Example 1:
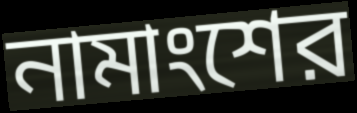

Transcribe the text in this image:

নামাংশের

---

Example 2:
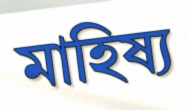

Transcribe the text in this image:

মাহিষ্য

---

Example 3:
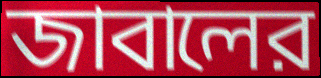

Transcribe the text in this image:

জাবালের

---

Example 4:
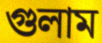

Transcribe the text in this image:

গুলাম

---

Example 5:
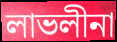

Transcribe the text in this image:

লাভলীনা